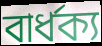
বার্ধক্য